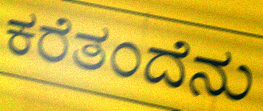
ಕರೆತಂದೆನು